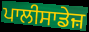
ਪਾਲੀਸਾਡੇਜ਼